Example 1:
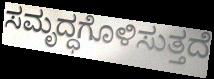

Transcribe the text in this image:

ಸಮೃದ್ಧಗೊಳಿಸುತ್ತದೆ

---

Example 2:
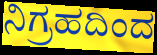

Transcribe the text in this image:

ನಿಗ್ರಹದಿಂದ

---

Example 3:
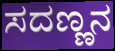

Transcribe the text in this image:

ಸದಣ್ಣನ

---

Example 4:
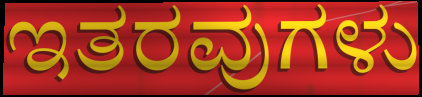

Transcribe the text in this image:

ಇತರವುಗಳು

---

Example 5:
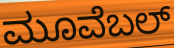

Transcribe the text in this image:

ಮೂವೆಬಲ್